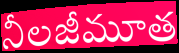
నీలజీమూత